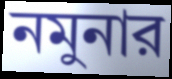
নমুনার